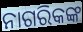
ନାଗରିକଙ୍କ